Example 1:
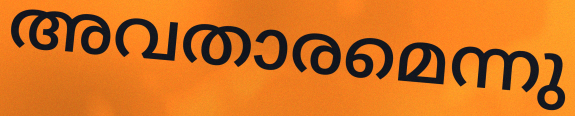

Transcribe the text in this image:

അവതാരമെന്നു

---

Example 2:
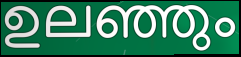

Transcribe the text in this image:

ഉലഞ്ഞും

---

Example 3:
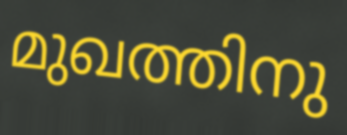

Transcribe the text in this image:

മുഖത്തിനു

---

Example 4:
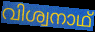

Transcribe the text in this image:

വിശ്വനാഥ്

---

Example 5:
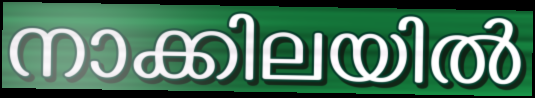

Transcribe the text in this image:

നാക്കിലയിൽ